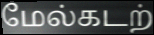
மேல்கடற்